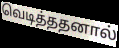
வெடித்ததனால்